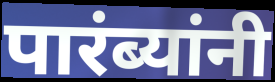
पारंब्यांनी